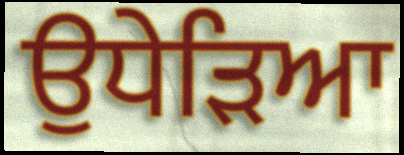
ਉਧੇੜਿਆ